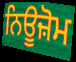
ਨਿਊਜ਼ੋਮ